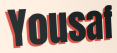
Yousaf